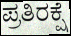
ಪ್ರತಿರಕ್ಷೆ